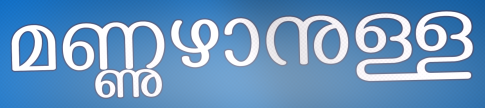
മണ്ണുഴാനുള്ള